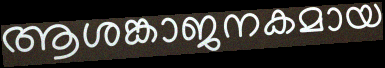
ആശങ്കാജനകമായ